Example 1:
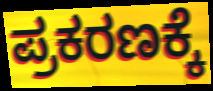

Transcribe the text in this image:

ಪ್ರಕರಣಕ್ಕೆ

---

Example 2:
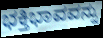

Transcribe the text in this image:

ಭಕ್ತಿಭಾವವನ್ನು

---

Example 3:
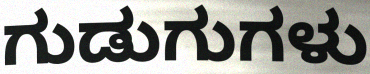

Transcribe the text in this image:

ಗುಡುಗುಗಳು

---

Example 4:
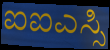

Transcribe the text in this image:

ಐಐಎಸ್ಸಿ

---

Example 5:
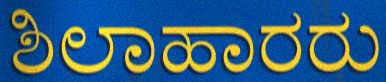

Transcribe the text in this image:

ಶಿಲಾಹಾರರು